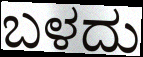
ಬಳದು